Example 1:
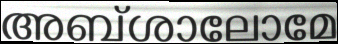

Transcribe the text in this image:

അബ്ശാലോമേ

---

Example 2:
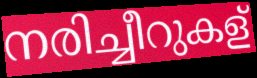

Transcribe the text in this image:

നരിച്ചീറുകള്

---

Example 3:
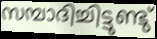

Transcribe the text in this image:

സമ്പാദിച്ചിട്ടുണ്ടു്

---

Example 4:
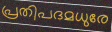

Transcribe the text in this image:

പ്രതിപദമധുരേ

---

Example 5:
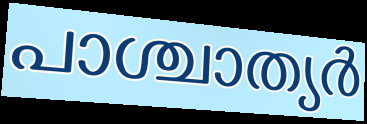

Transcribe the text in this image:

പാശ്ചാത്യർ